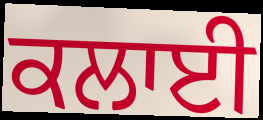
ਕਲਾਈ